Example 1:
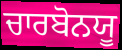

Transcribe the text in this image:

ਚਾਰਬੋਨਯੂ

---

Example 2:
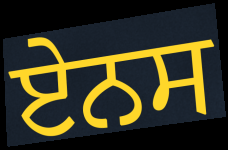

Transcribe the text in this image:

ਏਨਸ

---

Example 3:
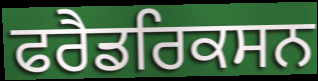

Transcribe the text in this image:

ਫਰੈਡਰਿਕਸਨ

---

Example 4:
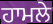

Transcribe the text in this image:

ਹਾਮਲੇ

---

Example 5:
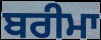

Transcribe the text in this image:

ਬਰੀਮਾ